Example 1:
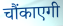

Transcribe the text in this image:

चौंकाएगी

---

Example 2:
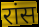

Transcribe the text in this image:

रांस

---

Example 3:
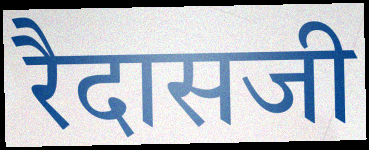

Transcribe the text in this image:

रैदासजी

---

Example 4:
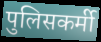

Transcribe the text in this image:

पुलिसकर्मी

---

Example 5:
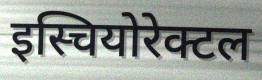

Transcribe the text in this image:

इस्चियोरेक्टल